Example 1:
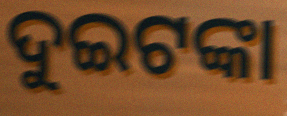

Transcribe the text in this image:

ଦୁଇଟଙ୍କା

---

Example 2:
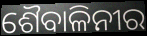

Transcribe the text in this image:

ଶୈବାଳିନୀର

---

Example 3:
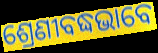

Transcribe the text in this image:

ଶ୍ରେଣୀବଦ୍ଧଭାବେ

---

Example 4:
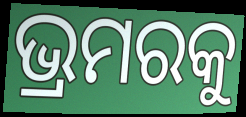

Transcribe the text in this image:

ଭ୍ରମରକୁ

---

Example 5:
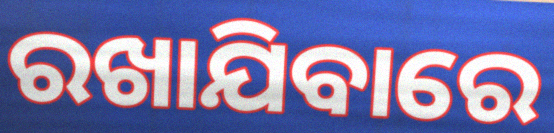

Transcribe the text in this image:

ରଖାଯିବାରେ